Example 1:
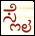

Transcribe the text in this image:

ಸ್ಲೈ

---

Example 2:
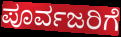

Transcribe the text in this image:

ಪೂರ್ವಜರಿಗೆ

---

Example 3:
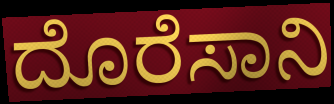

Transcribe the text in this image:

ದೊರೆಸಾನಿ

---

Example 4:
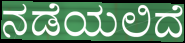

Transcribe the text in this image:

ನಡೆಯಲಿದೆ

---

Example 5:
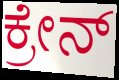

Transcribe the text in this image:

ಕ್ರೇನ್